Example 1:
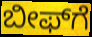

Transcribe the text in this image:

ಬೀಫ್‌ಗೆ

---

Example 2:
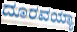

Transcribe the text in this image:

ದೂರವಯ್ಯಾ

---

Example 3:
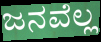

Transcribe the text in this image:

ಜನವೆಲ್ಲ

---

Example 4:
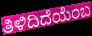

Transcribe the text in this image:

ತಿಳಿದಿದೆಯೆಂಬ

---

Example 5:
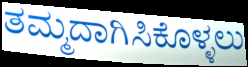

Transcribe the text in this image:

ತಮ್ಮದಾಗಿಸಿಕೊಳ್ಳಲು